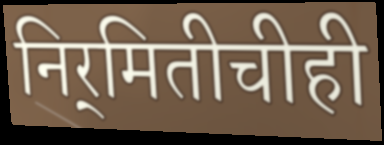
निर्मितीचीही